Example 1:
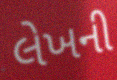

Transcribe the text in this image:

લેખની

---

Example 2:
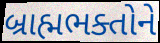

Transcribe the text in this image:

બ્રાહ્મભક્તોને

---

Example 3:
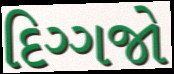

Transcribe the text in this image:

દિગ્ગજો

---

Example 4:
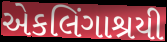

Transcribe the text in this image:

એકલિંગાશ્રયી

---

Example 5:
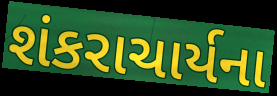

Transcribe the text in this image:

શંકરાચાર્યના